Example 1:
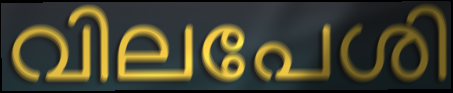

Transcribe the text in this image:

വിലപേശി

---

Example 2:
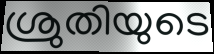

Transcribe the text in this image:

ശ്രുതിയുടെ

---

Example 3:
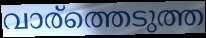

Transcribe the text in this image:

വാര്ത്തെടുത്ത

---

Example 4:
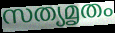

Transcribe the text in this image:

സത്യമൃതം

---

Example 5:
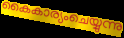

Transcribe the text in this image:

കൈകാര്യംചെയ്യുന്നു